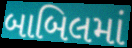
બાબિલમાં